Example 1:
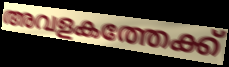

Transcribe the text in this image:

അവളകത്തേക്ക്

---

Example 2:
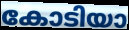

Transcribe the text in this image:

കോടിയാ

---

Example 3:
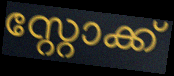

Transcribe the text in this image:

സ്റ്റോക്ക്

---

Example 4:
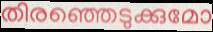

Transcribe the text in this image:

തിരഞ്ഞെടുക്കുമോ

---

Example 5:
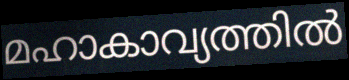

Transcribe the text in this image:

മഹാകാവ്യത്തിൽ